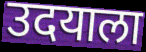
उदयाला